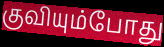
குவியும்போது